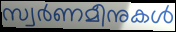
സ്വർണമീനുകൾ